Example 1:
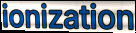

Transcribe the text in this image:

ionization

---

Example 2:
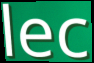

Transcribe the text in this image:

lec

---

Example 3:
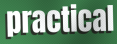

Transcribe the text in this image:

practical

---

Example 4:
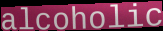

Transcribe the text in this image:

alcoholic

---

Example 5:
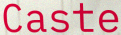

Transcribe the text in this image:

Caste